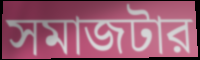
সমাজটার